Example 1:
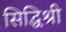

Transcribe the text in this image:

सिद्धिश्री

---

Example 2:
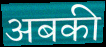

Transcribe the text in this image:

अबकी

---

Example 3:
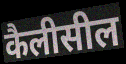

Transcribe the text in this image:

कैलीसील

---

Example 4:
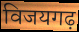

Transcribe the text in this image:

विजयगढ़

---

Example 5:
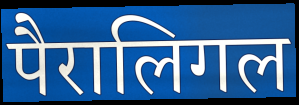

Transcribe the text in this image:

पैरालिगल